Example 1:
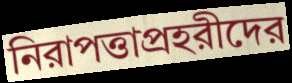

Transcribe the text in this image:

নিরাপত্তাপ্রহরীদের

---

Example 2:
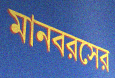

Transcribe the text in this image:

মানবরসের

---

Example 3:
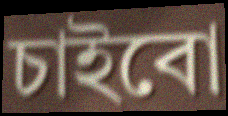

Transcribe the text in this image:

চাইবো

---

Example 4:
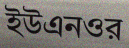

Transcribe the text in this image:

ইউএনওর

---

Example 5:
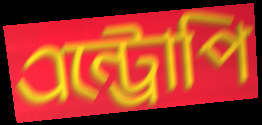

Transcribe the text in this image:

এন্ট্রোপি